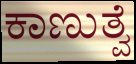
ಕಾಣುತ್ವೆ